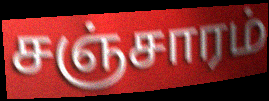
சஞ்சாரம்